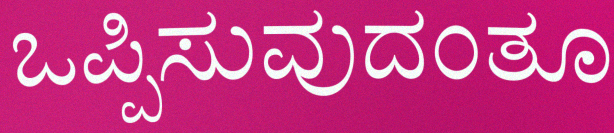
ಒಪ್ಪಿಸುವುದಂತೂ